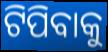
ଟିପିବାକୁ